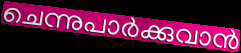
ചെന്നുപാർക്കുവാൻ